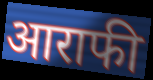
आराफी